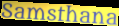
Samsthana